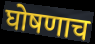
घोषणाच